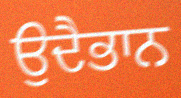
ਉਦੈਭਾਨ